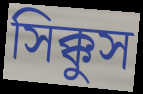
সিক্কুস